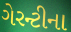
ગેરન્ટીના